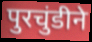
पुरचुंडीने